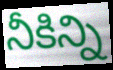
నీకిన్ని